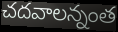
చదవాలన్నంత